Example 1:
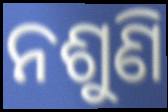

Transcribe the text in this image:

ନଶୁଣି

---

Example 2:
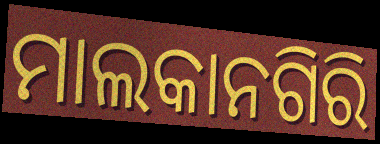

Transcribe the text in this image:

ମାଲକାନଗିରି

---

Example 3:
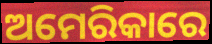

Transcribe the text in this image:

ଅମେରିକାରେ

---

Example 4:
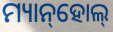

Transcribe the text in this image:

ମ୍ୟାନ୍‌ହୋଲ୍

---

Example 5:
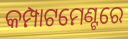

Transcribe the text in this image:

କମ୍ପାଟମେଣ୍ଟରେ